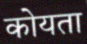
कोयता